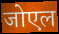
जोएल